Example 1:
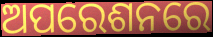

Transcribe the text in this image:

ଅପରେଶନରେ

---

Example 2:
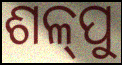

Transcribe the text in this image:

ଶଳ୍‍ପୁ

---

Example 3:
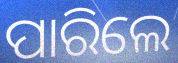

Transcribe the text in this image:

ପାରିଲେ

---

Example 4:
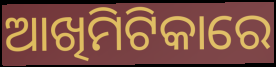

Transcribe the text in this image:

ଆଖିମିଟିକାରେ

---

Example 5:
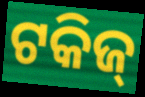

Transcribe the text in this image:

ଟକିଜ୍